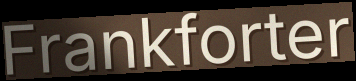
Frankforter